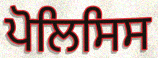
ਪੋਲਿਸਿਸ